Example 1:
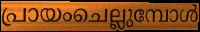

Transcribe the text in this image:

പ്രായംചെല്ലുമ്പോൾ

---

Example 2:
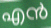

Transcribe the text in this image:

എൻ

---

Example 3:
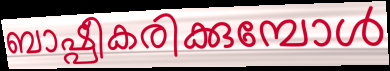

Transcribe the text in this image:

ബാഷ്പീകരിക്കുമ്പോൾ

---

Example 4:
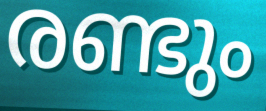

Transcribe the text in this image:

രണ്ടും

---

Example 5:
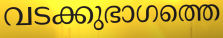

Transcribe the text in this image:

വടക്കുഭാഗത്തെ